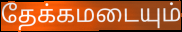
தேக்கமடையும்